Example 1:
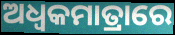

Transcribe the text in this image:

ଅଧ୍ଵକମାତ୍ରାରେ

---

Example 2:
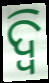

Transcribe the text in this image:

ଦ୍ଵି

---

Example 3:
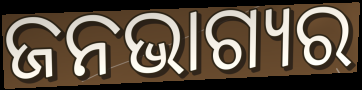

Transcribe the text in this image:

ଜନଭାଗ୍ୟର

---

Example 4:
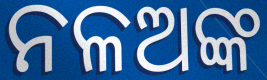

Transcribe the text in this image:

ନଳଅଙ୍କ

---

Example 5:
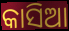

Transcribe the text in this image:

କାସିଆ